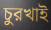
চুরখাই